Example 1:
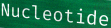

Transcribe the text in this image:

Nucleotide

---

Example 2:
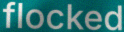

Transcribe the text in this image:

flocked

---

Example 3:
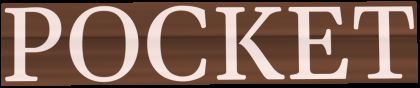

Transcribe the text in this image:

POCKET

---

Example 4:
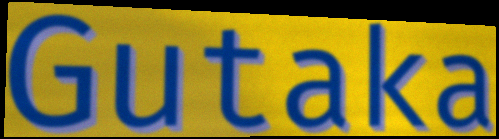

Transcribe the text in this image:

Gutaka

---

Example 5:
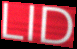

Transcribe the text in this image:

LID